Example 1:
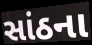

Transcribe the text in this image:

સાંઠના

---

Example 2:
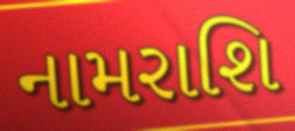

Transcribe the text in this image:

નામરાશિ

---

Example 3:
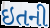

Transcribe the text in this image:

ઇતની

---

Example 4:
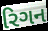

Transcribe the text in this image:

રિગન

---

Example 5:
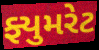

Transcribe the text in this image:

ફ્યુમરેટ